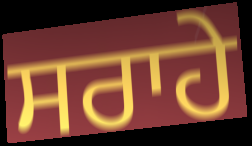
ਸਰਾਹੇ